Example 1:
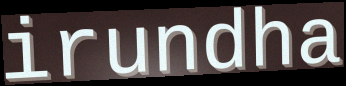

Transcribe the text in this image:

irundha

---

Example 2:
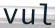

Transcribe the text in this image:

vul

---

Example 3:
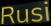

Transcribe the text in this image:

Rusi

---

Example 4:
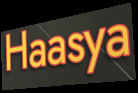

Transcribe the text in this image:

Haasya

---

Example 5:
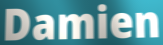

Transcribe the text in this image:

Damien